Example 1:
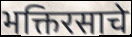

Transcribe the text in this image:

भक्तिरसाचे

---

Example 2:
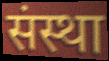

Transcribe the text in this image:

संस्था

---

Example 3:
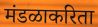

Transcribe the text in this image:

मंडळाकरिता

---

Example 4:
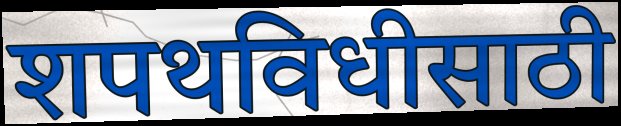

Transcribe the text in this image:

शपथविधीसाठी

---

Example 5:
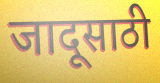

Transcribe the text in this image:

जादूसाठी